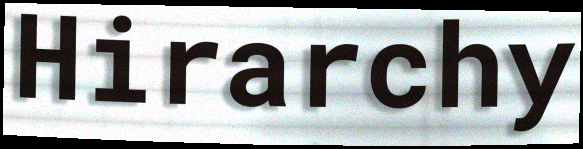
Hirarchy